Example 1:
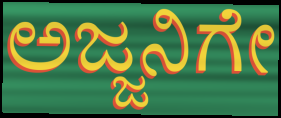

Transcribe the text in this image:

ಅಜ್ಜನಿಗೇ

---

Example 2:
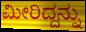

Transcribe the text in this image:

ಮೀರಿದ್ದನ್ನು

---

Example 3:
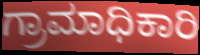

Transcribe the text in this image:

ಗ್ರಾಮಾಧಿಕಾರಿ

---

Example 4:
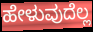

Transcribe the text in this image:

ಹೇಳುವುದೆಲ್ಲ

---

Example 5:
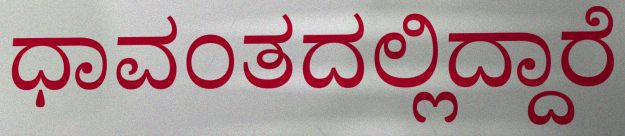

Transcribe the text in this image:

ಧಾವಂತದಲ್ಲಿದ್ದಾರೆ